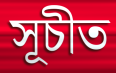
সূচীত